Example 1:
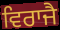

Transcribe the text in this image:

ਵਿਰਾਜੈ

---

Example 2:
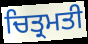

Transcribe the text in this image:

ਚਿਤ੍ਰਮਤੀ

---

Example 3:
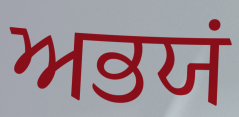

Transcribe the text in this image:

ਅਭਯਂ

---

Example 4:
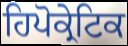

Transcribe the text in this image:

ਹਿਪੋਕ੍ਰੇਟਿਕ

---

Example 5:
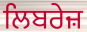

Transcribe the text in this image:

ਲਿਬਰੇਜ਼